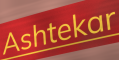
Ashtekar